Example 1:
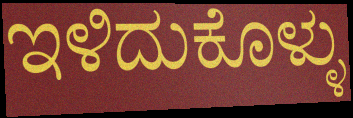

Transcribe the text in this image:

ಇಳಿದುಕೊಳ್ಳು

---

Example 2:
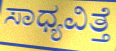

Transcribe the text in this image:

ಸಾಧ್ಯವಿತ್ತೆ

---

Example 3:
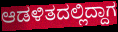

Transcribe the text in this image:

ಆಡಳಿತದಲ್ಲಿದ್ದಾಗ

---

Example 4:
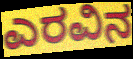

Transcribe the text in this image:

ಎರವಿನ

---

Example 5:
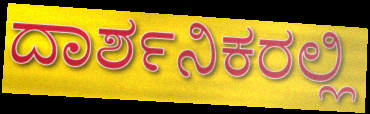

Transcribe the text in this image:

ದಾರ್ಶನಿಕರಲ್ಲಿ